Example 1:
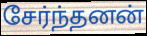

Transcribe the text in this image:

சேர்ந்தனன்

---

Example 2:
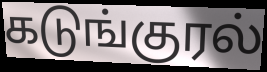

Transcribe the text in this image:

கடுங்குரல்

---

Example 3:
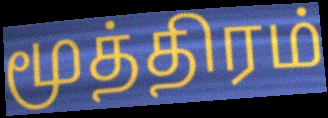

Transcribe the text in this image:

மூத்திரம்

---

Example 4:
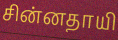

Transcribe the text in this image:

சின்னதாயி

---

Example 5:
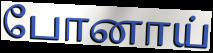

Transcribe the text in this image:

போனாய்